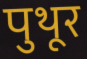
पुथूर